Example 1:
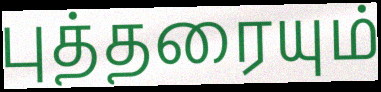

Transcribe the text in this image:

புத்தரையும்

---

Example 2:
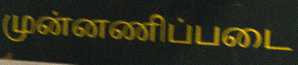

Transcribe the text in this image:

முன்னணிப்படை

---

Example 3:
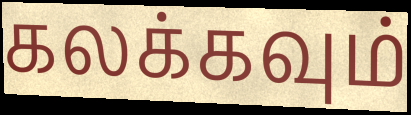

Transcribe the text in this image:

கலக்கவும்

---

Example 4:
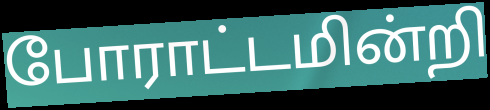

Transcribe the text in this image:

போராட்டமின்றி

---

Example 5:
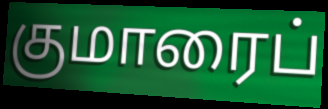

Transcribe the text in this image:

குமாரைப்